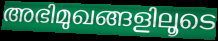
അഭിമുഖങ്ങളിലൂടെ